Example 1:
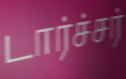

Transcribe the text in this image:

டார்ச்சர்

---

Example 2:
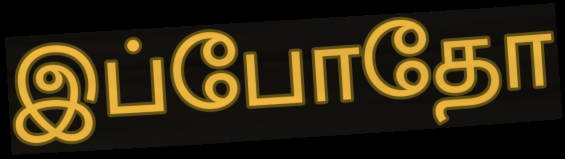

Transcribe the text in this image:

இப்போதோ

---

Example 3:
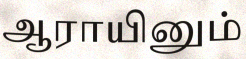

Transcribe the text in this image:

ஆராயினும்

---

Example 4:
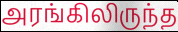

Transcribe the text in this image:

அரங்கிலிருந்த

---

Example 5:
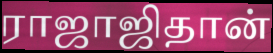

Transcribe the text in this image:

ராஜாஜிதான்